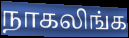
நாகலிங்க